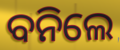
ବନିଲେ